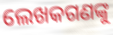
ଲେଖକଗଣଙ୍କୁ